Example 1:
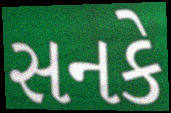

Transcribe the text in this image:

સનકે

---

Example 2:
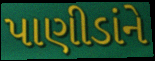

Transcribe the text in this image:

પાણીડાંને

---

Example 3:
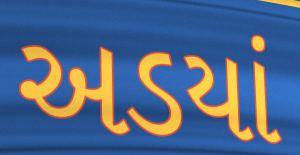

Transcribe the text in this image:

અડયાં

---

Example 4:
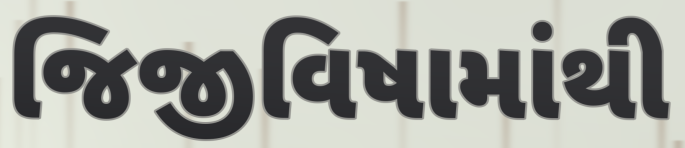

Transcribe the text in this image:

જિજીવિષામાંથી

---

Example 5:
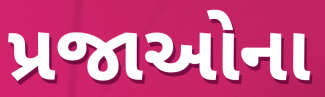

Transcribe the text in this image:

પ્રજાઓના